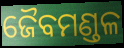
ଜୈବମଣ୍ଡଳ